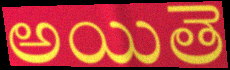
అయితె